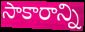
సాకారాన్ని